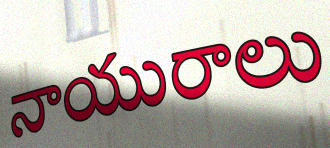
నాయురాలు